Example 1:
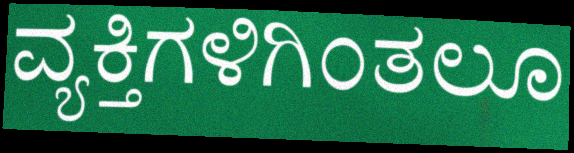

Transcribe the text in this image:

ವ್ಯಕ್ತಿಗಳಿಗಿಂತಲೂ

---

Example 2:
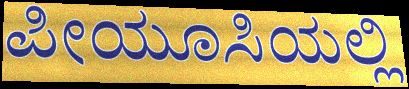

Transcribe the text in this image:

ಪೀಯೂಸಿಯಲ್ಲಿ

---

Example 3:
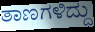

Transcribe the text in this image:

ತಾಣಗಳಿದ್ದು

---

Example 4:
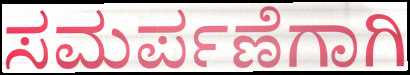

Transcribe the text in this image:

ಸಮರ್ಪಣೆಗಾಗಿ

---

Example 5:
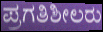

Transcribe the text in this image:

ಪ್ರಗತಿಶೀಲರು